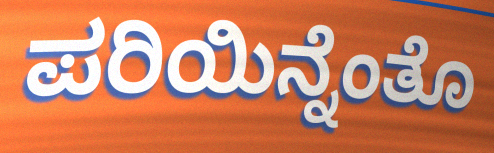
ಪರಿಯಿನ್ನೆಂತೊ